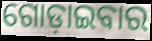
ଗୋଡ଼ାଇବାର